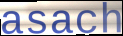
asach